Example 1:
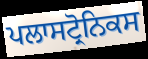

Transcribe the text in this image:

ਪਲਾਸਟ੍ਰੋਨਿਕਸ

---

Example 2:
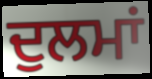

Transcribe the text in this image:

ਦੁਲਮਾਂ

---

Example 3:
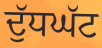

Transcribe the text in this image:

ਦੁੱਧਘੱਟ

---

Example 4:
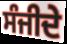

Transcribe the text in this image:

ਸੰਜੀਦੇ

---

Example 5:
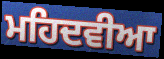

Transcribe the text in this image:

ਮਹਿਦਵੀਆ